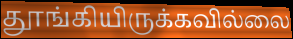
தூங்கியிருக்கவில்லை